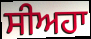
ਸੀਅਹਾ